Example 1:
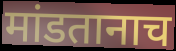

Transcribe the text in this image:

मांडतानाच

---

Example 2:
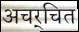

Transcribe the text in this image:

अचर्चित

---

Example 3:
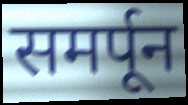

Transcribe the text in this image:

समर्पून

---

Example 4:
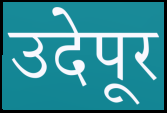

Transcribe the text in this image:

उदेपूर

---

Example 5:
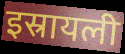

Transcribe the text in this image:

इस्रायली